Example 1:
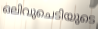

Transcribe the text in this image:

ഒലിവുചെടിയുടെ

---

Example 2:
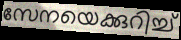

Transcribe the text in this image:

സേനയെക്കുറിച്ച്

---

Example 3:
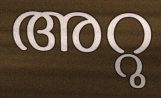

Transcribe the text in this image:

അറ്റു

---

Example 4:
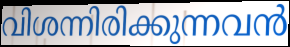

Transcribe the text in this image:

വിശന്നിരിക്കുന്നവൻ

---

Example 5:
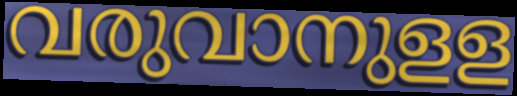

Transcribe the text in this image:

വരുവാനുളള